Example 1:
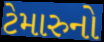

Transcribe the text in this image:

ટેમારુનો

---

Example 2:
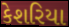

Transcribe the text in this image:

કેશરિયા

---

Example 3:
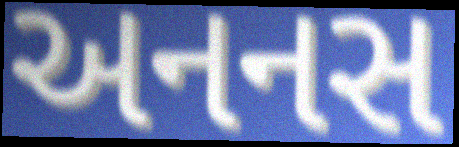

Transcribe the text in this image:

અનનસ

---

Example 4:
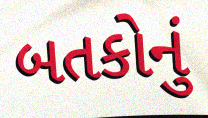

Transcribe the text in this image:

બતકોનું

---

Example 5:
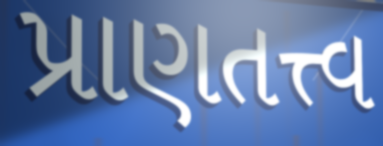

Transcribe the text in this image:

પ્રાણતત્ત્વ